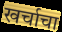
खर्चाचा